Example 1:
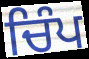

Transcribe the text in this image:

ਚਿੰਪ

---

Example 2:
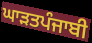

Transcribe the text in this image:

ਘਾੜਤਪੰਜਾਬੀ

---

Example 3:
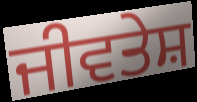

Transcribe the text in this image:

ਜੀਵਤੇਸ਼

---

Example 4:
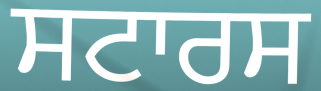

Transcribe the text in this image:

ਸਟਾਰਸ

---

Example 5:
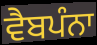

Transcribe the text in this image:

ਵੈਬਪੰਨਾ